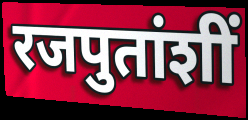
रजपुतांशीं